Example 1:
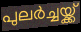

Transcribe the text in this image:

പുലർച്ചയ്ക്ക്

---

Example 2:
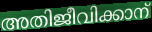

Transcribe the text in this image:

അതിജീവിക്കാന്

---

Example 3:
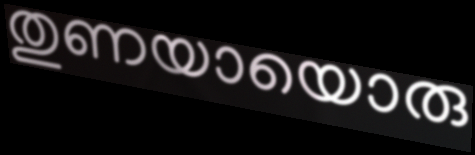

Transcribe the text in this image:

തുണയായൊരു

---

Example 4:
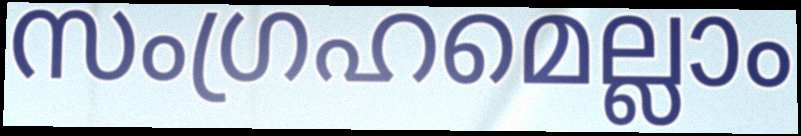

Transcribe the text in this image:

സംഗ്രഹമെല്ലാം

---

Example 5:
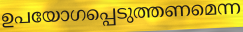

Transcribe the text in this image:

ഉപയോഗപ്പെടുത്തണമെന്ന